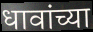
धावांच्या